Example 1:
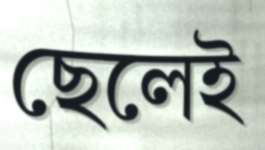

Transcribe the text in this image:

ছেলেই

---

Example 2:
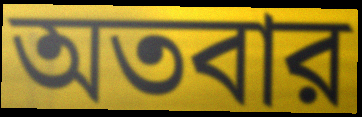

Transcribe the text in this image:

অতবার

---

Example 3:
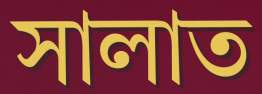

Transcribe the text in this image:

সালাত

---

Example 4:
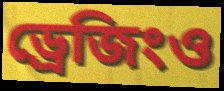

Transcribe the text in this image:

ড্রেজিংও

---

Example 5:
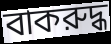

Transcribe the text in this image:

বাকরুদ্ধ